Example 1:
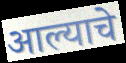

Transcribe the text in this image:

आल्याचे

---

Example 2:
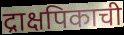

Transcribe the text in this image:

द्राक्षपिकाची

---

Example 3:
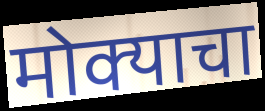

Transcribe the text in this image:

मोक्याचा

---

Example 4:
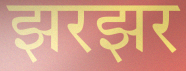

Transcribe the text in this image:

झरझर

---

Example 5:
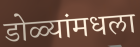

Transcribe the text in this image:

डोळ्यांमधला